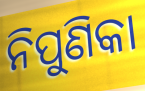
ନିପୁଣିକା